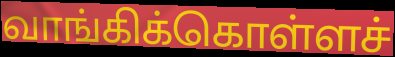
வாங்கிக்கொள்ளச்